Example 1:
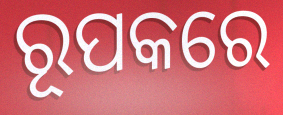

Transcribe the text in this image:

ରୂପକରେ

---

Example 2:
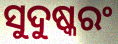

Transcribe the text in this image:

ସୁଦୁଷ୍କରଂ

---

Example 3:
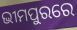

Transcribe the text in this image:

ଭୀମପୁରରେ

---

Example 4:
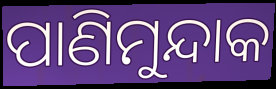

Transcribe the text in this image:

ପାଣିମୁନ୍ଦାକ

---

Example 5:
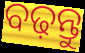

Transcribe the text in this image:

ବଢ଼ନ୍ତୁ